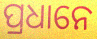
ପ୍ରଧାନେ